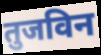
तुजविन